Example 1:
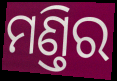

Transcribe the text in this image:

ମଣ୍ତିର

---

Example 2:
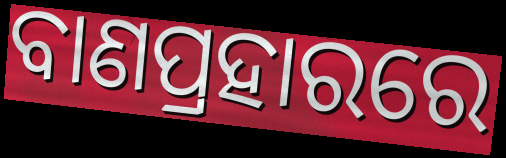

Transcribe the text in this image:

ବାଣପ୍ରହାରରେ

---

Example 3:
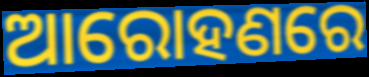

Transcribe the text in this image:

ଆରୋହଣରେ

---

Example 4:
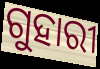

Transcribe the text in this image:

ଗୁହାରୀ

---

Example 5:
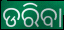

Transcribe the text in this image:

ଡରିବା